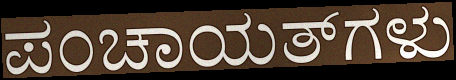
ಪಂಚಾಯತ್‌ಗಳು